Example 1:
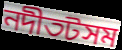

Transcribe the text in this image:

নদীতটসম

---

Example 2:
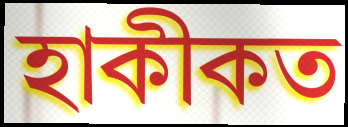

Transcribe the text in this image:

হাকীকত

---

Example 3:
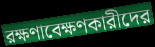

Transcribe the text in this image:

রক্ষণাবেক্ষণকারীদের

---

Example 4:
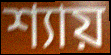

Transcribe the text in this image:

শ্যায়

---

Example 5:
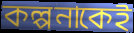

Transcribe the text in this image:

কল্পনাকেই